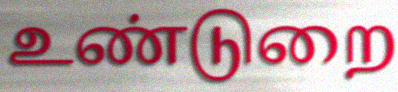
உண்டுறை